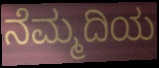
ನೆಮ್ಮದಿಯ